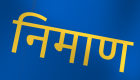
निमाण